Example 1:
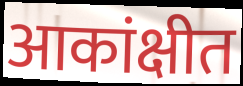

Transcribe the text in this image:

आकांक्षीत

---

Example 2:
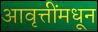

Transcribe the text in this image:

आवृत्तींमधून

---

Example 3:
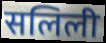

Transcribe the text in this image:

सलिली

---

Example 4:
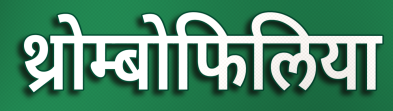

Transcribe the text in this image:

थ्रोम्बोफिलिया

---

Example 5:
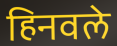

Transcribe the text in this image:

हिनवले